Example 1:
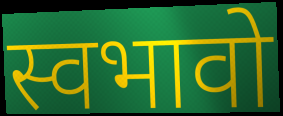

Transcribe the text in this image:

स्वभावो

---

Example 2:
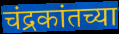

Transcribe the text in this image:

चंद्रकांतच्या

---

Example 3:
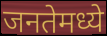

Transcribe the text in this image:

जनतेमध्ये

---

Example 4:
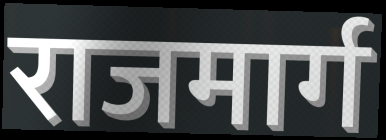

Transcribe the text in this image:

राजमार्ग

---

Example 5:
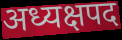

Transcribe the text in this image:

अध्यक्षपद